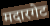
मदारगेट